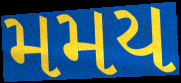
મમય